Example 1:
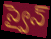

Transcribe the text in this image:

స్వైన్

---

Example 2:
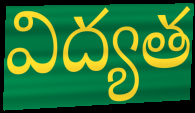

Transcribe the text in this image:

విద్యత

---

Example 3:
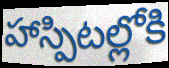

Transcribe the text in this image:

హాస్పిటల్లోకి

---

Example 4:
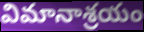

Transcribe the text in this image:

విమానాశ్రయం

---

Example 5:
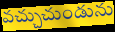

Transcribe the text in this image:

వచ్చుచుండును